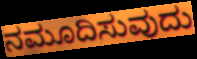
ನಮೂದಿಸುವುದು